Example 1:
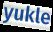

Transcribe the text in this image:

yukle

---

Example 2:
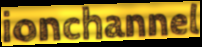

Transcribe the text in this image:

ionchannel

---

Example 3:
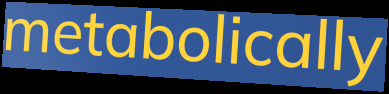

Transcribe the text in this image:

metabolically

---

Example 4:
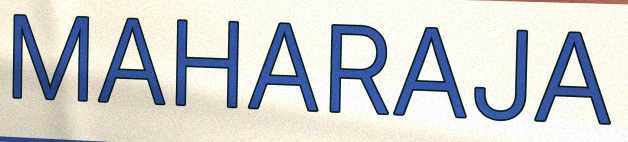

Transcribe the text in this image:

MAHARAJA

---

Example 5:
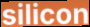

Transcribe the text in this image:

silicon